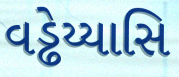
વડ્ઢેય્યાસિ